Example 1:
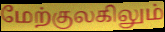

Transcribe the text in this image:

மேற்குலகிலும்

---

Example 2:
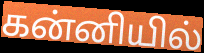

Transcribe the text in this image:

கன்னியில்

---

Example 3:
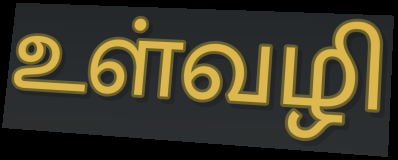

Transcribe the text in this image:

உள்வழி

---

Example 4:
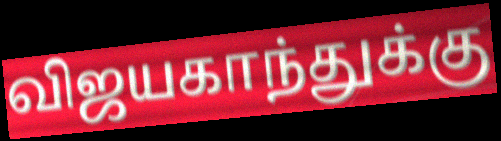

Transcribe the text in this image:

விஜயகாந்துக்கு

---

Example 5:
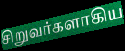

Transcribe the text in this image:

சிறுவர்களாகிய